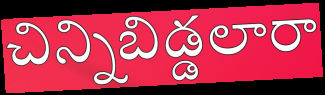
చిన్నిబిడ్డలారా